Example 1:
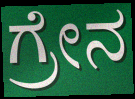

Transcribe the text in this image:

ಗ್ರೇನ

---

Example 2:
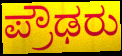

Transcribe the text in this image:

ಪ್ರೌಢರು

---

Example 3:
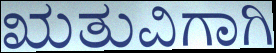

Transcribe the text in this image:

ಋತುವಿಗಾಗಿ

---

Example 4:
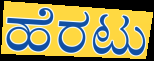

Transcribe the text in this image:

ಹೆರಟು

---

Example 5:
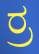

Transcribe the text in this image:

ರ್ರ